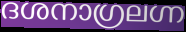
ദശനാഗ്രലഗ്ന